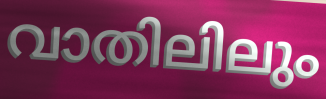
വാതിലിലും